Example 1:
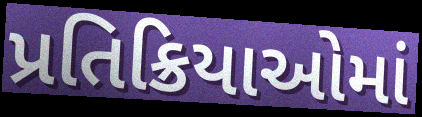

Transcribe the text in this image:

પ્રતિક્રિયાઓમાં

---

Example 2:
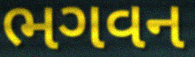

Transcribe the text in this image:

ભગવન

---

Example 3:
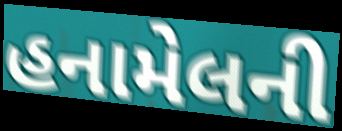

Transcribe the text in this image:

હનામેલની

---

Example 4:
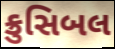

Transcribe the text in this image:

ક્રુસિબલ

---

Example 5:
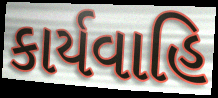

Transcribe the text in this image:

કાર્યવાહિ